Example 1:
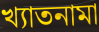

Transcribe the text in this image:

খ্যাতনামা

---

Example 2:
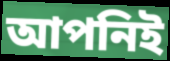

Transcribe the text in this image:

আপনিই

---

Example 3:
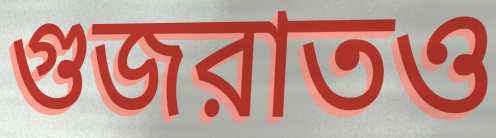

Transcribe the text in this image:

গুজরাতও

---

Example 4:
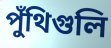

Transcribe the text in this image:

পুঁথিগুলি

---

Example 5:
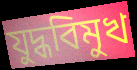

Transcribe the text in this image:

যুদ্ধবিমুখ